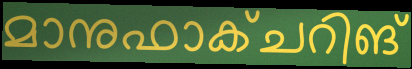
മാനുഫാക്ചറിങ്